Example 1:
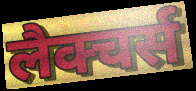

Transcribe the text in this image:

लैक्चर्स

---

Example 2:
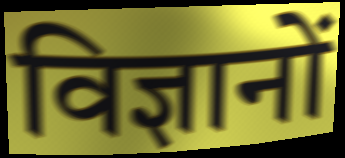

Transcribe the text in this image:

विज्ञानों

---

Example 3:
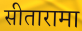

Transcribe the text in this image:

सीतारामा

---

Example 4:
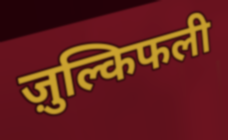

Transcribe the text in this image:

ज़ुल्किफली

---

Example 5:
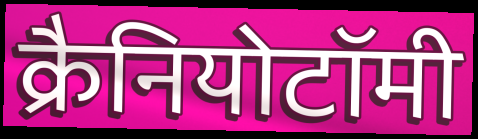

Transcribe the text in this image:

क्रैनियोटॉमी